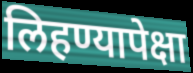
लिहण्यापेक्षा